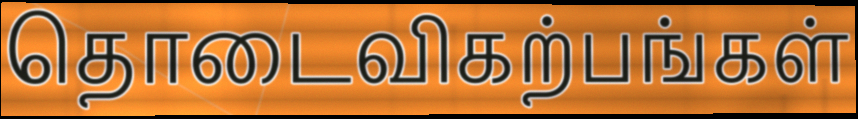
தொடைவிகற்பங்கள்